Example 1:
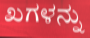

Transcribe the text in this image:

ಖಗಳನ್ನು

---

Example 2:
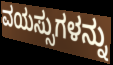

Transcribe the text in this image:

ವಯಸ್ಸುಗಳನ್ನು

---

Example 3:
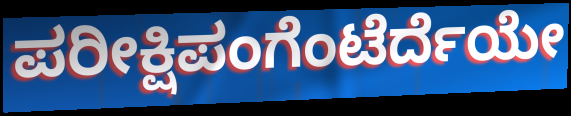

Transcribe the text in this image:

ಪರೀಕ್ಷಿಪಂಗೆಂಟೆರ್ದೆಯೇ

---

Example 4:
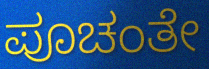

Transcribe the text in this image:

ಪೂಚಂತೇ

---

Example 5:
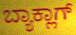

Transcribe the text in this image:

ಬ್ಯಾಕ್ಲಾಗ್